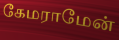
கேமராமேன்